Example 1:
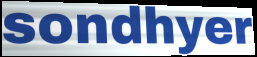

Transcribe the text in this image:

sondhyer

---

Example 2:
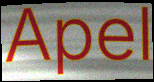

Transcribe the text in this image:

Apel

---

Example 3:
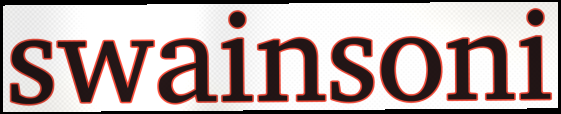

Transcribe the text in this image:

swainsoni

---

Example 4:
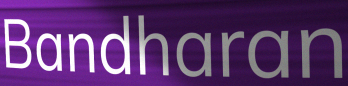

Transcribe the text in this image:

Bandharan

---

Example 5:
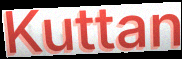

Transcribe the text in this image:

Kuttan